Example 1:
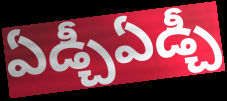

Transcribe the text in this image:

ఏడ్చీఏడ్చీ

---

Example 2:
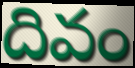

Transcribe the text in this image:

దివం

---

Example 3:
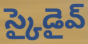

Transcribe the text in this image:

స్కైడైవ్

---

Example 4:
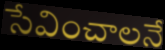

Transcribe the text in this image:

సేవించాలనే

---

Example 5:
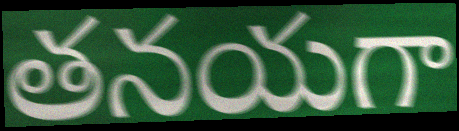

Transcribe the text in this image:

తనయగా